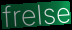
frelse